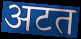
अटत